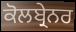
ਕੋਲਬ੍ਰੇਨਰ